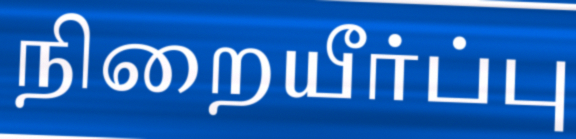
நிறையீர்ப்பு